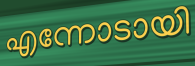
എന്നോടായി